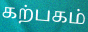
கற்பகம்